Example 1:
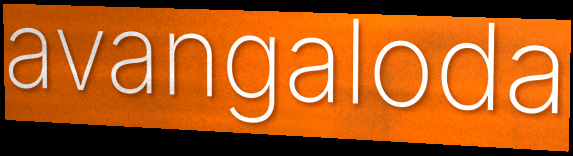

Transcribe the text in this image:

avangaloda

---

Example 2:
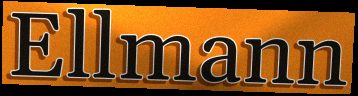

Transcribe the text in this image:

Ellmann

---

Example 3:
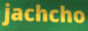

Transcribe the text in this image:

jachcho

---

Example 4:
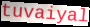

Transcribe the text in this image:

tuvaiyal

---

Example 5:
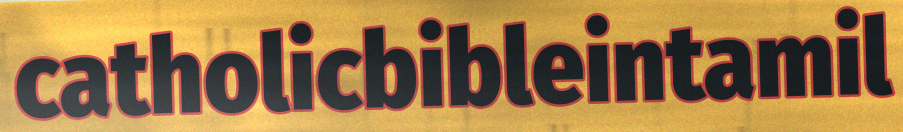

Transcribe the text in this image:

catholicbibleintamil